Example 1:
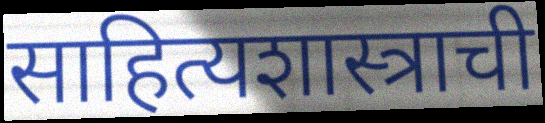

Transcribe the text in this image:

साहित्यशास्त्राची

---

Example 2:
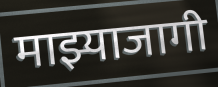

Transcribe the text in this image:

माझ्याजागी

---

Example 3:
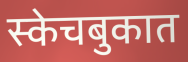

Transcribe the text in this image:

स्केचबुकात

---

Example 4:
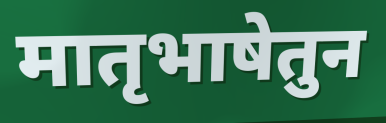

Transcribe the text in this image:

मातृभाषेतुन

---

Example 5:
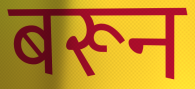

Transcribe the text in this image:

बरून